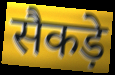
सैकड़े